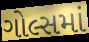
ગોલ્સમાં